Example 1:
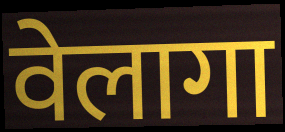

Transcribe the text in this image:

वेलागा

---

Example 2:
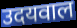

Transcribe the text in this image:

उदयवाल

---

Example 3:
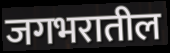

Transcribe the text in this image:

जगभरातील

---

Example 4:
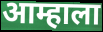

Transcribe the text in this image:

आम्हाला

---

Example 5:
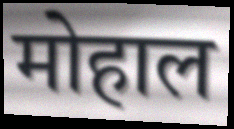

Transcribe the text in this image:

मोहाल